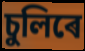
চুলিৰে